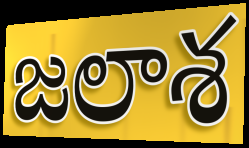
జలాశ